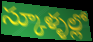
స్కూళ్ళల్లో